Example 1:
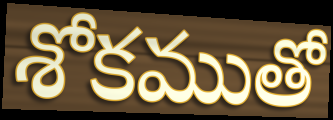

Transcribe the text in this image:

శోకముతో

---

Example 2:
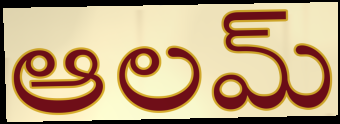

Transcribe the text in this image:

ఆలమ్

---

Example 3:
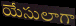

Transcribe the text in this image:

యేసులాగా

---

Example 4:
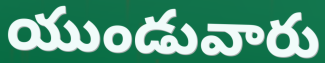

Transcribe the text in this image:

యుండువారు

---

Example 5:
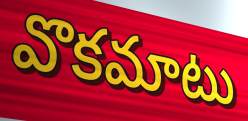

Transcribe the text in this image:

వొకమాటు